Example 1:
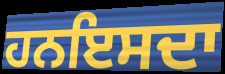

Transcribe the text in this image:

ਹਨਇਸਦਾ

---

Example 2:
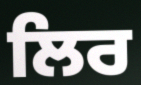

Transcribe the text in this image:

ਲਿਰ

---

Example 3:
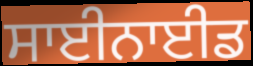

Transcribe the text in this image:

ਸਾਈਨਾਈਡ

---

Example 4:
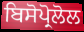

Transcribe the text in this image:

ਬਿਸੋਪ੍ਰੋਲੋਲ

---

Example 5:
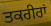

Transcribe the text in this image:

ਤਕਰੀਰਾਂ